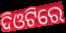
ଦିଓଟିରେ